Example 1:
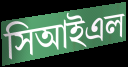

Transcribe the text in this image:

সিআইএল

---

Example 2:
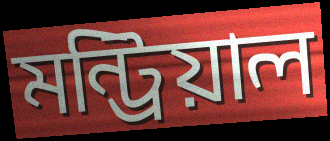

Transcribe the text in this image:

মন্ট্রিয়াল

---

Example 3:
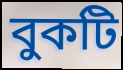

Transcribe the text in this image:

বুকটি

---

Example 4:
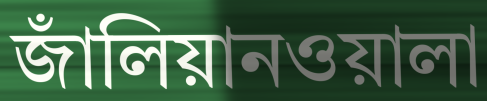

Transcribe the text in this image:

জাঁলিয়ানওয়ালা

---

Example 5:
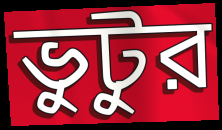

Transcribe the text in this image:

ভুটুর